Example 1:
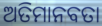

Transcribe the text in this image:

ଅତିମାନବତା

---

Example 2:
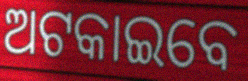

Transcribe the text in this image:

ଅଟକାଇବେ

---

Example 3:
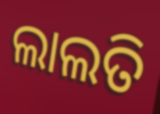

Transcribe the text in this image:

ଲାଲତି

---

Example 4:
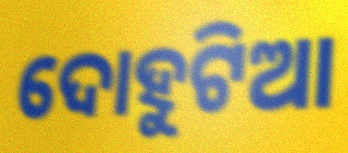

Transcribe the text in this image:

ଦୋହୁଟିଆ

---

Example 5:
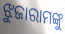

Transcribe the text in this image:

ଝୁଜାରାମଙ୍କୁ